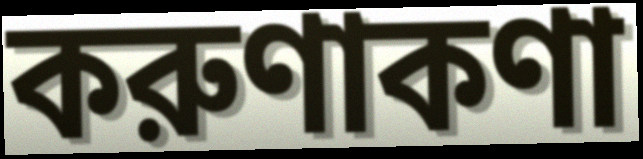
করুণাকণা